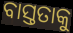
ବାସ୍ତତାକୁ